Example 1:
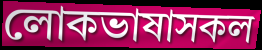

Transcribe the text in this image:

লোকভাষাসকল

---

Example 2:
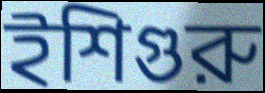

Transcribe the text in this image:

ইশিগুরু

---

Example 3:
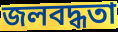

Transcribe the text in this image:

জলবদ্ধতা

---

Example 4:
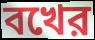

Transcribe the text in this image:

বখের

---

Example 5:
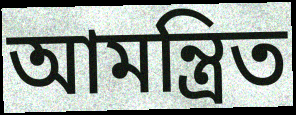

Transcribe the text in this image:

আমন্ত্রিত